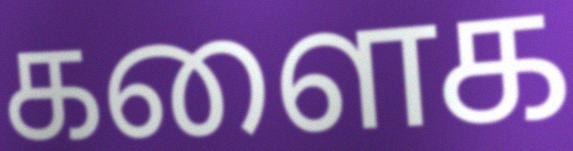
களைக